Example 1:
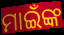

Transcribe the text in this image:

ମାଇଁଙ୍କ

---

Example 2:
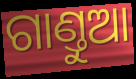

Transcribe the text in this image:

ଗାଣ୍ତୁଆ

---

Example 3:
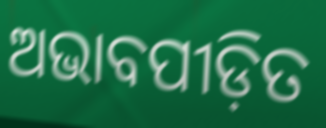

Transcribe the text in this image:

ଅଭାବପୀଡ଼ିତ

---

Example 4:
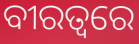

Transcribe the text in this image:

ବୀରତ୍ୱରେ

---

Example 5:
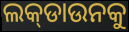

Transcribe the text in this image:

ଲକ୍‌ଡାଉନକୁ